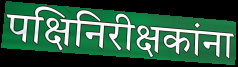
पक्षिनिरीक्षकांना